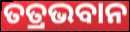
ତତ୍ରଭବାନ